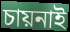
চায়নাই